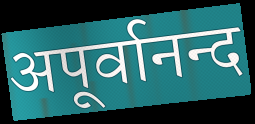
अपूर्वानन्द